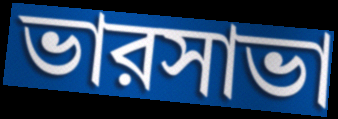
ভারসাভা